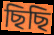
ছিছি